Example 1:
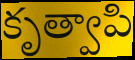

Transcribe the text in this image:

కృత్వాపి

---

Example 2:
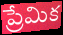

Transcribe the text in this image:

ప్రేమిక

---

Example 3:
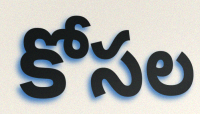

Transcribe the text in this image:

కోసల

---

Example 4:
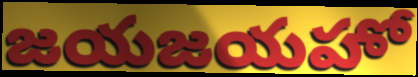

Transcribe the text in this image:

జయజయహో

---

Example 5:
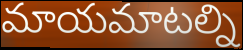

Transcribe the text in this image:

మాయమాటల్ని